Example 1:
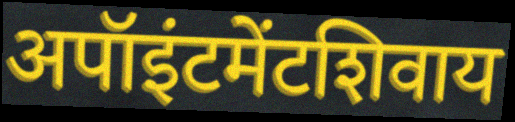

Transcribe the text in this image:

अपॉइंटमेंटशिवाय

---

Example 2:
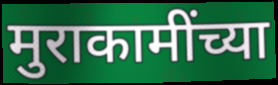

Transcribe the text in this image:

मुराकामींच्या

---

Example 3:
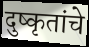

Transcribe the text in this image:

दुष्कृतांचे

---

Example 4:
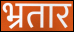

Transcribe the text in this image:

भ्रतार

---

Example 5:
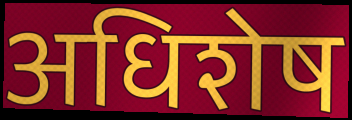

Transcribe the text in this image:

अधिशेष